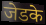
जेडके